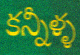
కన్నీళ్ళ